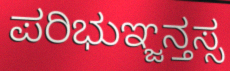
ಪರಿಭುಞ್ಜನ್ತಸ್ಸ